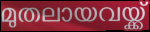
മുതലായവയ്ക്ക്